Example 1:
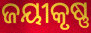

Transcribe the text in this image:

ଜୟୀକୃଷ୍ଣ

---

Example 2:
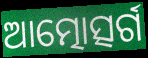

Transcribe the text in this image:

ଆତ୍ମୋତ୍ସର୍ଗ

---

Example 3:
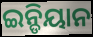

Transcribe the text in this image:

ଇନ୍ଡିୟାନ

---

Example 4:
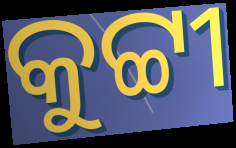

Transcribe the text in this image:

କୁଟ୍ଟୀ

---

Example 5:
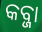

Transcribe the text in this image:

କବ୍ଜା